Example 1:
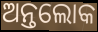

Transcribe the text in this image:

ଅନ୍ତଲୋକ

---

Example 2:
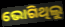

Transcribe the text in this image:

ଭୋଗିଥିଲୁ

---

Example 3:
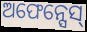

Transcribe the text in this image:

ଅଫେନ୍ସେସ୍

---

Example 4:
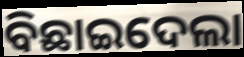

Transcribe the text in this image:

ବିଛାଇଦେଲା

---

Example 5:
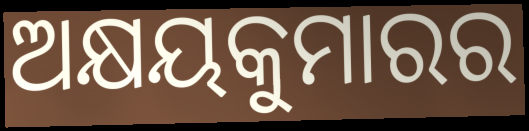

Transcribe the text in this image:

ଅକ୍ଷୟକୁମାରର